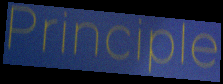
Principle